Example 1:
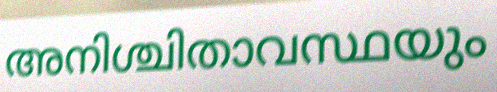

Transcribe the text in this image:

അനിശ്ചിതാവസ്ഥയും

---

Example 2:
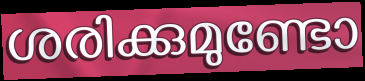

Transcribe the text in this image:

ശരിക്കുമുണ്ടോ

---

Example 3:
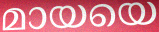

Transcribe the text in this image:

മായയെ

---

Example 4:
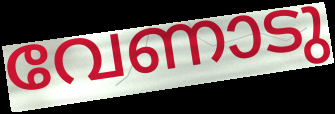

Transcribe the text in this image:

വേണാടു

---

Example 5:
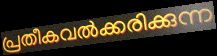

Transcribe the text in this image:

പ്രതീകവൽക്കരിക്കുന്ന